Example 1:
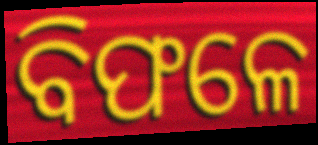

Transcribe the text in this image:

ବିଫଳେ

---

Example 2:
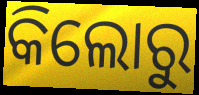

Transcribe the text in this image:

କିଲୋରୁ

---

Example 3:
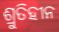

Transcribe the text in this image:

ଶ୍ରୁତିହୀନ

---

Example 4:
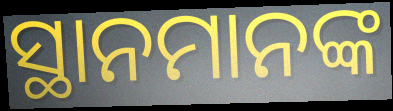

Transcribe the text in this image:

ସ୍ଥାନମାନଙ୍କ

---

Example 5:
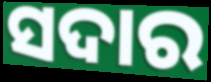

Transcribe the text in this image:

ସଦାର